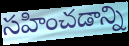
సహించడాన్ని